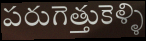
పరుగెత్తుకెళ్ళి